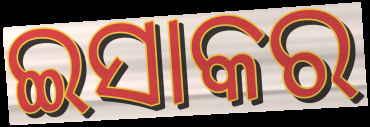
ଇସାକର